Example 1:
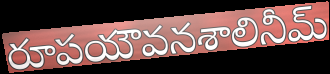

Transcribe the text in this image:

రూపయౌవనశాలినీమ్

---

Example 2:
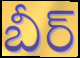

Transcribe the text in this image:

బీర్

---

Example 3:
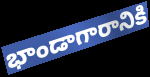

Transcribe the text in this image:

భాండాగారానికి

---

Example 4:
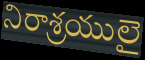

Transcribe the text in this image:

నిరాశ్రయులై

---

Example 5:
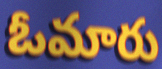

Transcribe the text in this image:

ఓమారు